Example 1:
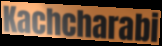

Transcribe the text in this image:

Kachcharabi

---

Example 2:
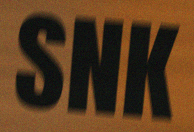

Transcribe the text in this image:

SNK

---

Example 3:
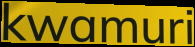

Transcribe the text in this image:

kwamuri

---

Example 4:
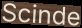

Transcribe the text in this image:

Scinde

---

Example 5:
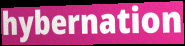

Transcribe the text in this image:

hybernation